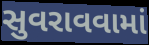
સુવરાવવામાં